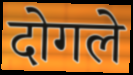
दोगले